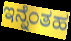
ಇನ್ನೆಂತಹ